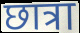
छात्रा